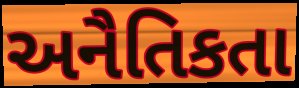
અનૈતિકતા